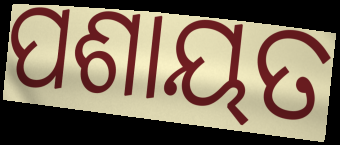
ପଶାୟତ